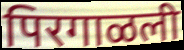
पिरगाळली